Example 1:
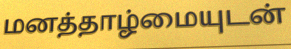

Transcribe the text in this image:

மனத்தாழ்மையுடன்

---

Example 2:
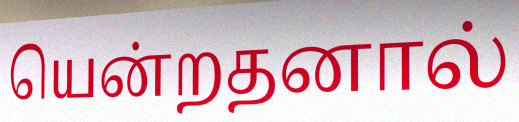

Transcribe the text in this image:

யென்றதனால்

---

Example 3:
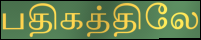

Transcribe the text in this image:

பதிகத்திலே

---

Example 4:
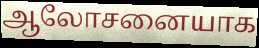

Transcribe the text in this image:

ஆலோசனையாக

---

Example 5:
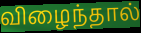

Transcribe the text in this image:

விழைந்தால்